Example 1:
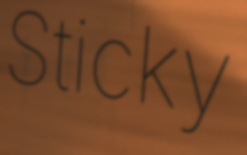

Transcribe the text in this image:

Sticky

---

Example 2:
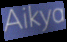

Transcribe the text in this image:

Aikya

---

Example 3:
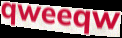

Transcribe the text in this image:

qweeqw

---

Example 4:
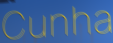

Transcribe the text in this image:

Cunha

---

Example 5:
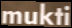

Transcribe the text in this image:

mukti